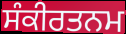
ਸੰਕੀਰਤਨਮ